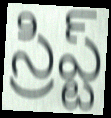
స్రిప్ట్